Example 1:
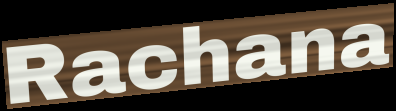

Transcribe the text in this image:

Rachana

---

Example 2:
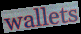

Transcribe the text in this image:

wallets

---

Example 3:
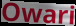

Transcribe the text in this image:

Owari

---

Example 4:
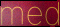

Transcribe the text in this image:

med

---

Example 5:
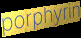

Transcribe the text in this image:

porphyrin